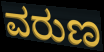
ವರುಣ